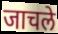
जाचले